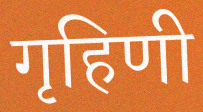
गृहिणी